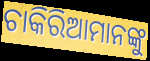
ଚାକିରିଆମାନଙ୍କୁ